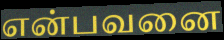
என்பவனை